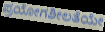
ಪ್ರಯೋಗಶೀಲತೆಯೇ